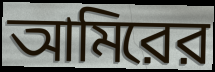
আমিরের